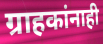
ग्राहकांनाही